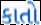
કાતો